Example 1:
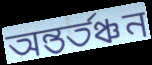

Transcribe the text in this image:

অন্তর্তঞ্চন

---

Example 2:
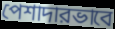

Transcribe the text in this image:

পেশাদারভাবে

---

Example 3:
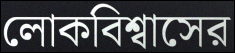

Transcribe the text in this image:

লোকবিশ্বাসের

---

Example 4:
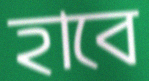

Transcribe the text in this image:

হাবে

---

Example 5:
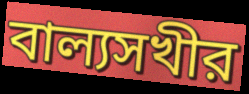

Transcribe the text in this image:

বাল্যসখীর